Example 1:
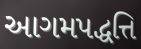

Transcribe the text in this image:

આગમપદ્ધત્તિ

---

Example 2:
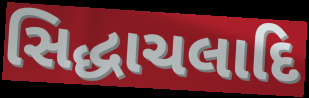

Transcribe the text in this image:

સિદ્ધાચલાદિ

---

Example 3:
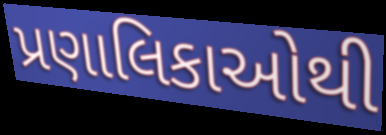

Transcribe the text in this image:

પ્રણાલિકાઓથી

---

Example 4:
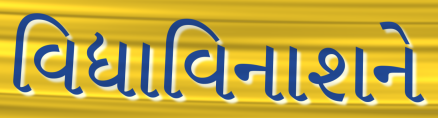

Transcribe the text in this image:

વિદ્યાવિનાશને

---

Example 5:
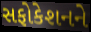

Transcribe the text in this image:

સફોકેશનને